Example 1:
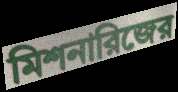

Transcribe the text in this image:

মিশনারিজের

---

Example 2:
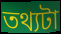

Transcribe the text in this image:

তথ্যটা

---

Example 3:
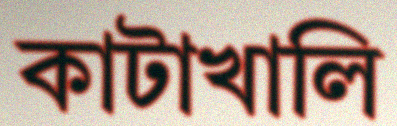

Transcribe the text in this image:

কাটাখালি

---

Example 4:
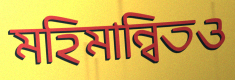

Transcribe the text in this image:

মহিমান্বিতও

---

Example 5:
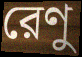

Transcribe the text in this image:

রেণু